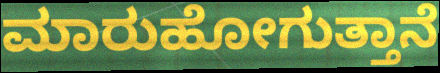
ಮಾರುಹೋಗುತ್ತಾನೆ